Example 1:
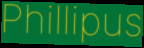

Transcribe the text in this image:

Phillipus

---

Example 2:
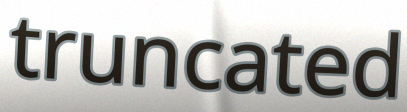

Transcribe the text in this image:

truncated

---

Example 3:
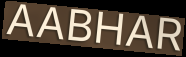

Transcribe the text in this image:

AABHAR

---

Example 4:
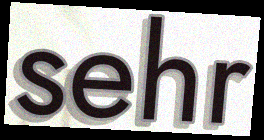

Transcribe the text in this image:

sehr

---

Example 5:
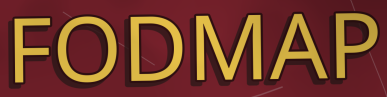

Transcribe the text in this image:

FODMAP